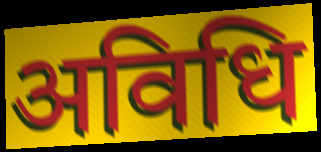
अविधि